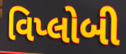
વિપ્લોબી